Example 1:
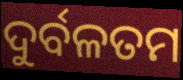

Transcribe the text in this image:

ଦୁର୍ବଳତମ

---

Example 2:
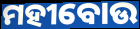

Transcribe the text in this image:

ମହୀବୋଉ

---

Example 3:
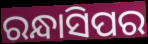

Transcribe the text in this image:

ରନ୍ଧାସିପର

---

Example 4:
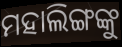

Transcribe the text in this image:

ମହାଲିଙ୍ଗଙ୍କୁ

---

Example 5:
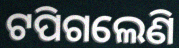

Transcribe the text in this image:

ଟପିଗଲେଣି